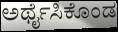
ಅರ್ಥೈಸಿಕೊಂಡ